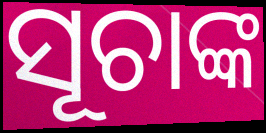
ସୂଚାଙ୍କ